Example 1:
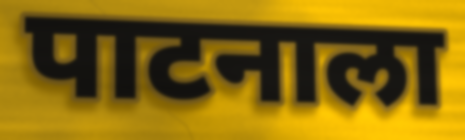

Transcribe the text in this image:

पाटनाला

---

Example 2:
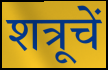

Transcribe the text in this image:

शत्रूचें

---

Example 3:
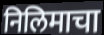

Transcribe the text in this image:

निलिमाचा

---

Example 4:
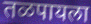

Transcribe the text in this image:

तळपायला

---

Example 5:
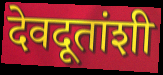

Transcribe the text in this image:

देवदूतांशी